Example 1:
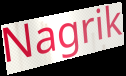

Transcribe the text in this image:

Nagrik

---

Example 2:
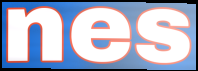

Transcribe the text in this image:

nes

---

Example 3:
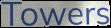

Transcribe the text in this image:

Towers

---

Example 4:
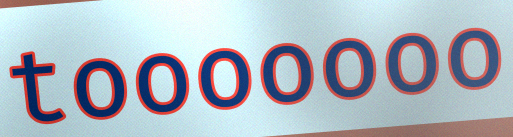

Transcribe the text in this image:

tooooooo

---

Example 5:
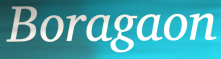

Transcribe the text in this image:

Boragaon